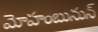
మోహంబునున్